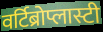
वर्टिब्रोप्लास्टी